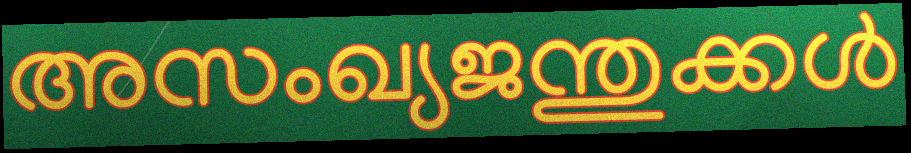
അസംഖ്യജന്തുക്കൾ